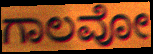
ಗಾಲವೋ